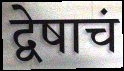
द्वेषाचं